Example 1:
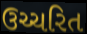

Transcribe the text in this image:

ઉચ્ચરિત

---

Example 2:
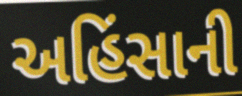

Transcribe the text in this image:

અહિંસાની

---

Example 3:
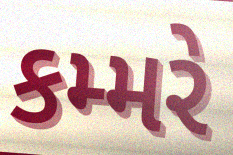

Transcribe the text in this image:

કમ્મરે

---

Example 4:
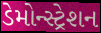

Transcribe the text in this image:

ડેમોન્સ્ટ્રેશન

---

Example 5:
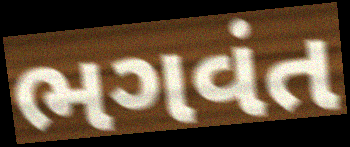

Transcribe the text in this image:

ભગવંત